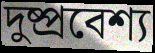
দুষ্প্রবেশ্য